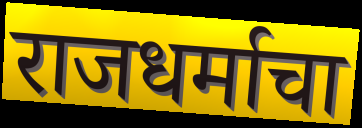
राजधर्माचा